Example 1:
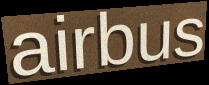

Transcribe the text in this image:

airbus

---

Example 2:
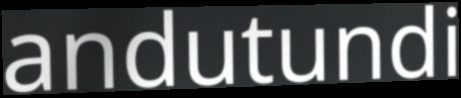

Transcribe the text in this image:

andutundi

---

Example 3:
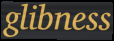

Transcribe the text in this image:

glibness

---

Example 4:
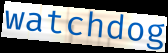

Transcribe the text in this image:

watchdog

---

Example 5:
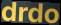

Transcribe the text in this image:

drdo